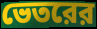
ভেতরের